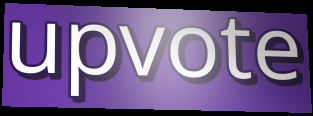
upvote